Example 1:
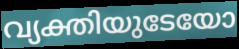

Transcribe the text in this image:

വ്യക്തിയുടേയോ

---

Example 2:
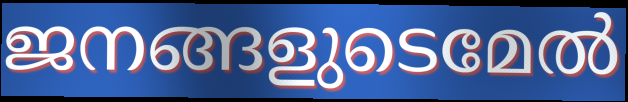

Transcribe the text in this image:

ജനങ്ങളുടെമേൽ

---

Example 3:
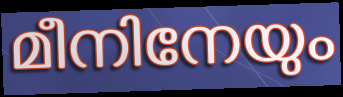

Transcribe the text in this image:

മീനിനേയും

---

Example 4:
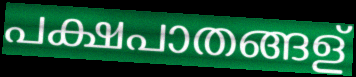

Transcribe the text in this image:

പക്ഷപാതങ്ങള്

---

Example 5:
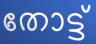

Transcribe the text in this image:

തോട്ട്